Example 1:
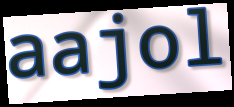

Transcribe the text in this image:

aajol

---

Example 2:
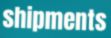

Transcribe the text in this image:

shipments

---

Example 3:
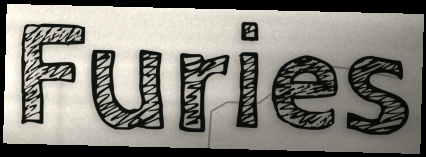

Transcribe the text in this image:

Furies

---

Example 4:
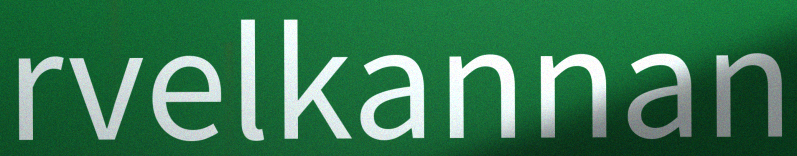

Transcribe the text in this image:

rvelkannan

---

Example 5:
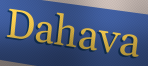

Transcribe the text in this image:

Dahava